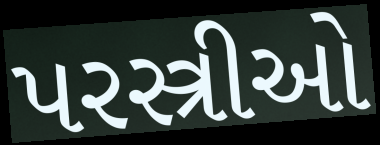
પરસ્ત્રીઓ